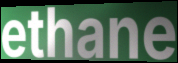
ethane